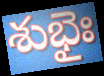
శుభైః